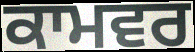
ਕਾਮਵਰ